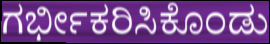
ಗರ್ಭೀಕರಿಸಿಕೊಂಡು